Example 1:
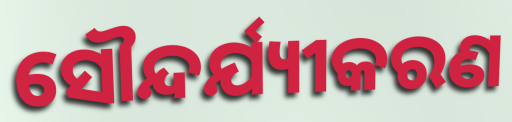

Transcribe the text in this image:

ସୌନ୍ଦର୍ଯ୍ୟୀକରଣ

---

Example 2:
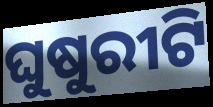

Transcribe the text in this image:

ଘୁଷୁରୀଟି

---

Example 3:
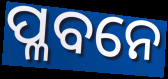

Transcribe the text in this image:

ପ୍ଳବନେ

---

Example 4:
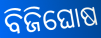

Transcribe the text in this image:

ବିଜିଘୋଷ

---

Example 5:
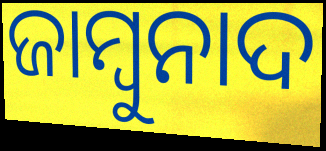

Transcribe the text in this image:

ଜାମ୍ବୁନାଦ